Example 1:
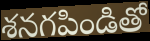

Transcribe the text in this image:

శనగపిండితో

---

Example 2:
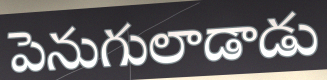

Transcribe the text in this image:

పెనుగులాడాడు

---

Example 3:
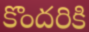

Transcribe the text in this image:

కొందరికి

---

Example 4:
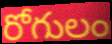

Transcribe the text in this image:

రోగులం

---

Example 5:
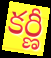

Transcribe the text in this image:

కర్ణీ